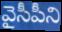
వైసీపీని